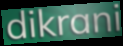
dikrani